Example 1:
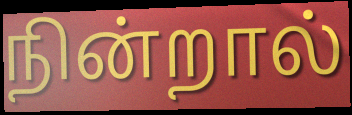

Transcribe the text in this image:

நின்றால்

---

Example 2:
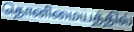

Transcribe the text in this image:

தொனிமையத்தில்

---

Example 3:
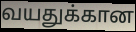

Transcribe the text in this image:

வயதுக்கான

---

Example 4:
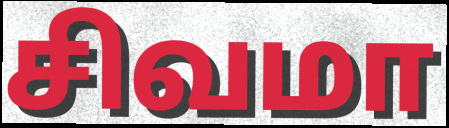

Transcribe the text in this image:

சிவமா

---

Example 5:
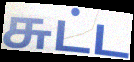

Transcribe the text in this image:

சுட்ட